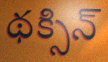
థక్సిన్